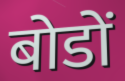
बोडों